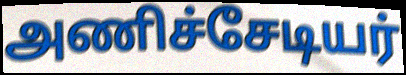
அணிச்சேடியர்